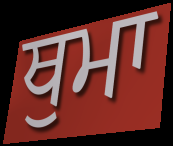
ਥੁਮਾ